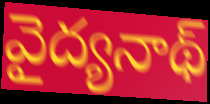
వైద్యనాథ్